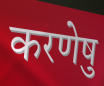
करणेषु